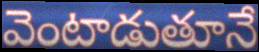
వెంటాడుతూనే